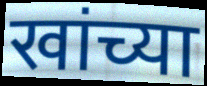
खांच्या